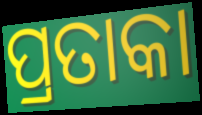
ପ୍ରତାକା